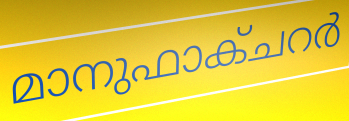
മാനുഫാക്ചറർ